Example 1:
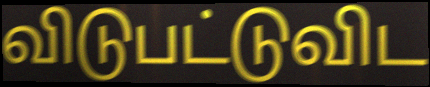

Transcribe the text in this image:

விடுபட்டுவிட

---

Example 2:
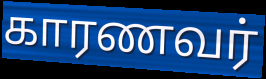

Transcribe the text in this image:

காரணவர்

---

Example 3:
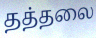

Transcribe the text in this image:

தத்தலை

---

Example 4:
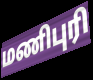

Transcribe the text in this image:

மணிபுரி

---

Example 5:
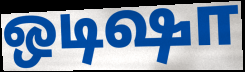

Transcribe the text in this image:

ஒடிஷா